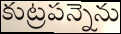
కుట్రపన్నెను